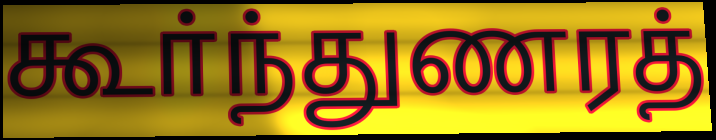
கூர்ந்துணரத்